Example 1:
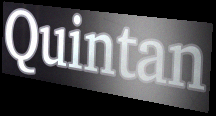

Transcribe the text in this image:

Quintan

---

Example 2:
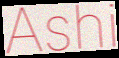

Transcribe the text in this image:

Ashi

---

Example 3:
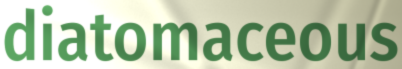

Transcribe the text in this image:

diatomaceous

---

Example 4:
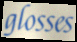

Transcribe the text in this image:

glosses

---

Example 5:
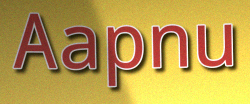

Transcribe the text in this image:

Aapnu